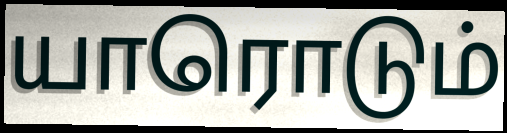
யாரொடும்